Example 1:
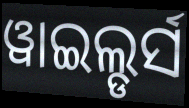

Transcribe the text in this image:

ୱାଇଲ୍ଡର୍ସ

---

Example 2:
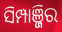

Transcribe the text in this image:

ସିମ୍ପାଞ୍ଜିର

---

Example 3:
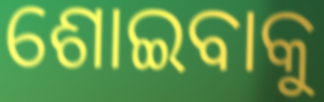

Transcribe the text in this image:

ଶୋଇବାକୁ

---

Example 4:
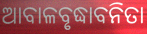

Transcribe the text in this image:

ଆବାଳବୃଦ୍ଧାବନିତା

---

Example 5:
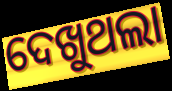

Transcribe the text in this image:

ଦେଖୁଥଲା